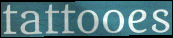
tattooes